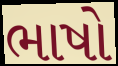
ભાષો